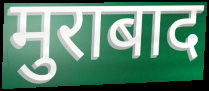
मुराबाद